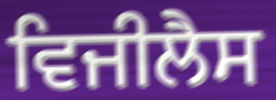
ਵਿਜੀਲੈਸ